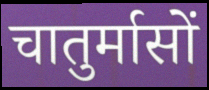
चातुर्मासों